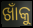
ଖାଁକୁ